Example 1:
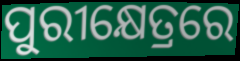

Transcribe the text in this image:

ପୁରୀକ୍ଷେତ୍ରରେ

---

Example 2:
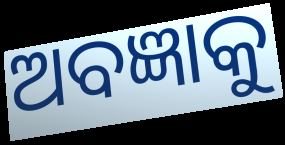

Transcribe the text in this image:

ଅବଜ୍ଞାକୁ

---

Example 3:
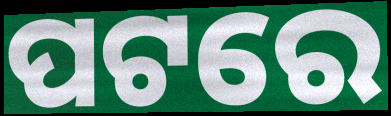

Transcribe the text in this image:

ପଟରେ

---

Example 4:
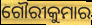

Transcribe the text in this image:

ଗୌରୀକୁମାର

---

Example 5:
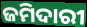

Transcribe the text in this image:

ଜମିଦାରୀ